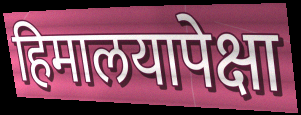
हिमालयापेक्षा